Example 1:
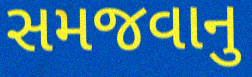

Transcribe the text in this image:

સમજવાનુ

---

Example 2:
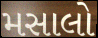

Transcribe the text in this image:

મસાલો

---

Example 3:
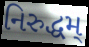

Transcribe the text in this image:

નિરુદ્ધમ્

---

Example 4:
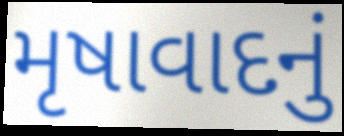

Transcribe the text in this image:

મૃષાવાદનું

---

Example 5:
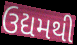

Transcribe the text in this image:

ઉદ્યમથી